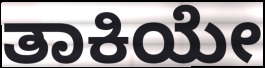
ತಾಕಿಯೇ